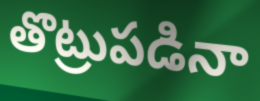
తొట్రుపడినా